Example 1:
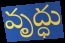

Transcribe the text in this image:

వృద్ధు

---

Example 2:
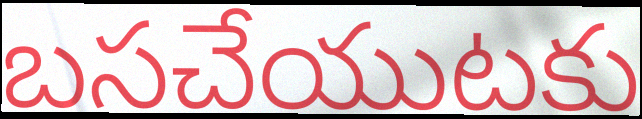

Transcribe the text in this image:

బసచేయుటకు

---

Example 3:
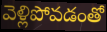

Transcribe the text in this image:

వెళ్లిపోవడంతో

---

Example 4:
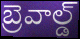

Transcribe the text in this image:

బ్రెవాల్డ్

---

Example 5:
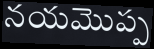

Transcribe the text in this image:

నయమొప్ప